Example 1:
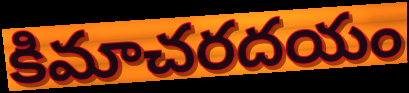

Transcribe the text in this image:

కిమాచరదయం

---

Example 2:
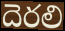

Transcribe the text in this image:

దెరలి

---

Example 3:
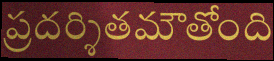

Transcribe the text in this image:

ప్రదర్శితమౌతోంది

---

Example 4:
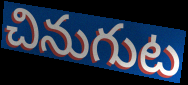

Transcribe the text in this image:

చినుగుట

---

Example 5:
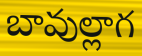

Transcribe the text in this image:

బావుల్లాగ